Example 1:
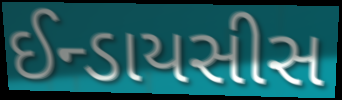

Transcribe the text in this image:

ઈન્ડાયસીસ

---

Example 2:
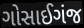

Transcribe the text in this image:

ગોસાઈગંજ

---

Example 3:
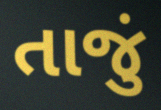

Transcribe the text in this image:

તાજું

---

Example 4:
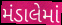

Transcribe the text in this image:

મંડાલેમાં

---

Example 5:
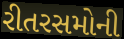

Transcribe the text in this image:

રીતરસમોની